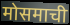
मोसमाची